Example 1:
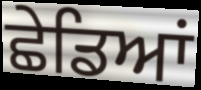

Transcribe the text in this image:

ਛੇਡਿਆਂ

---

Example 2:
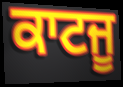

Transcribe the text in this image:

ਕਾਟਜੂ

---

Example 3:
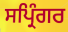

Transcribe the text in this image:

ਸਪ੍ਰਿੰਗਰ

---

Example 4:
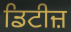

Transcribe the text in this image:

ਡਿਟੀਜ਼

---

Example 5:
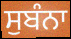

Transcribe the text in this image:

ਸੁਬੰਨਾ